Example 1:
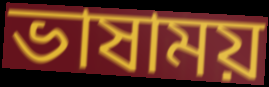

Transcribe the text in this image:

ভাষাময়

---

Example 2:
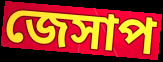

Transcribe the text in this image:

জেসাপ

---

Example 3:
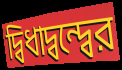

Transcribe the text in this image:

দ্বিধাদ্বন্দ্বের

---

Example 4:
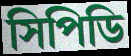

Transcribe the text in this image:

সিপিডি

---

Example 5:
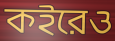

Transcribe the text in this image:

কইরেও